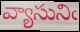
వ్యాసునిఁ